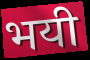
भयी